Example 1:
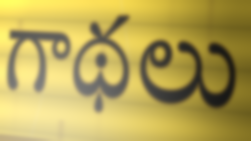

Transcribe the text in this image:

గాథలు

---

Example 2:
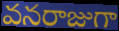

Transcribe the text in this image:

వనరాజుగా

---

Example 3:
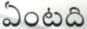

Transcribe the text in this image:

ఏంటది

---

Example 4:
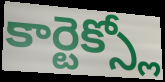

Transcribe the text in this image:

కార్టెక్స్లో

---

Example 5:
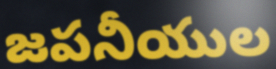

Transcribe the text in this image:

జపనీయుల